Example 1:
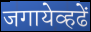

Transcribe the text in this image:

जगायेव्हढें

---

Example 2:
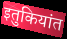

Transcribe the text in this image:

इतुकियांत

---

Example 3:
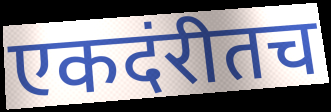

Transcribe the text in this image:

एकदंरीतच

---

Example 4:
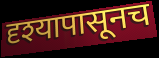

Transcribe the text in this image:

दृश्यापासूनच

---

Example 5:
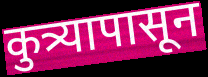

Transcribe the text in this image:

कुत्र्यापासून